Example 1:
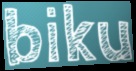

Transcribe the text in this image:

biku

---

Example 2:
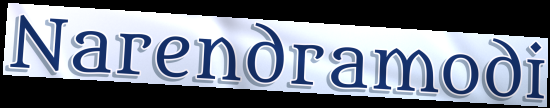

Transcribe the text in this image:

Narendramodi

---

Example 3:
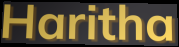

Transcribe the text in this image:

Haritha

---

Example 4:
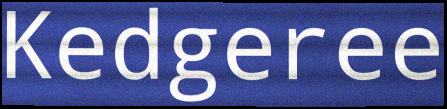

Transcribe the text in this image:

Kedgeree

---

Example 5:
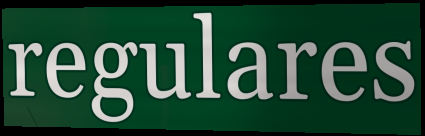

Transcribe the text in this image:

regulares